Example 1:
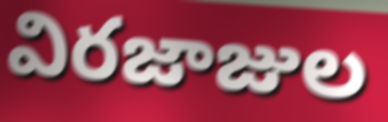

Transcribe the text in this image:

విరజాజుల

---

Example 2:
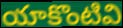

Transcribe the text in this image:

యాకొంటివి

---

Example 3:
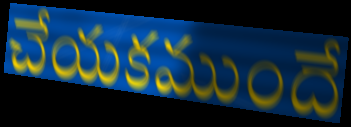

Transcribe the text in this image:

చేయకముందే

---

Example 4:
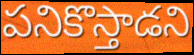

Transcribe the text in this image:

పనికొస్తాడని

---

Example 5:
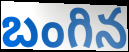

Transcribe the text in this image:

బంగిన